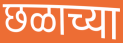
छळाच्या